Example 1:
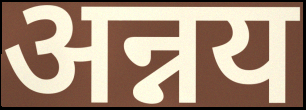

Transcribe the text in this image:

अन्नय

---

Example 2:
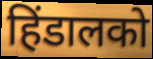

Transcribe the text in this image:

हिंडालको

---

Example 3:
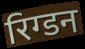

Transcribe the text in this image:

रिग्डन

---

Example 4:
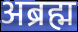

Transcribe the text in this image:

अब्रह्म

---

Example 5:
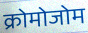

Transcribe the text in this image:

क्रोमोजोम